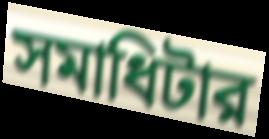
সমাধিটার